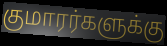
குமாரர்களுக்கு